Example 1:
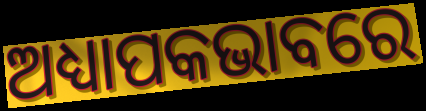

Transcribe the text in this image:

ଅଧ୍ୟାପକଭାବରେ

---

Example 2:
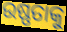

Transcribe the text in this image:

ଉଷ୍ଣତାକୁ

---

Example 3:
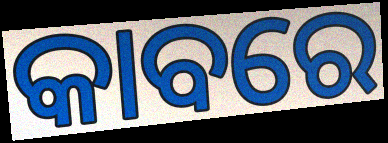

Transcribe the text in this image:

କାବରେ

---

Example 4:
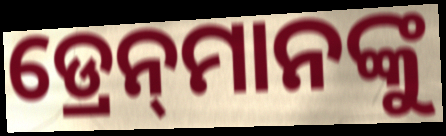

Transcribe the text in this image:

ଡ୍ରେନ୍‌ମାନଙ୍କୁ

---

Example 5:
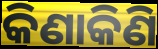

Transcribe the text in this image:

କିଣାକିଣି